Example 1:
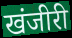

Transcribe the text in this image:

खंजीरी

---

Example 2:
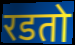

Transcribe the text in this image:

रडतो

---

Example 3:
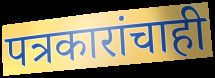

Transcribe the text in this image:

पत्रकारांचाही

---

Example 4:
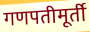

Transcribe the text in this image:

गणपतीमूर्ती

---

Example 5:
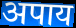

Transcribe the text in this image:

अपाय